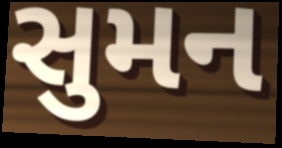
સુમન